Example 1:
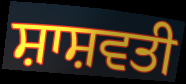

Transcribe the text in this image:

ਸ਼ਾਸ਼ਵਤੀ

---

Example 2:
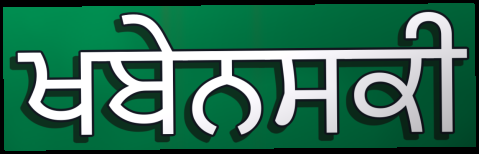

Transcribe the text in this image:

ਖਬੇਨਸਕੀ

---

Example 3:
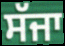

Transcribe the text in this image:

ਸੱਜਾ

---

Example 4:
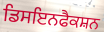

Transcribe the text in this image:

ਡਿਸਇਨਫੈਕਸ਼ਨ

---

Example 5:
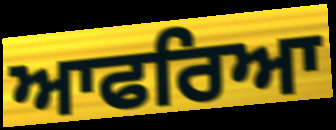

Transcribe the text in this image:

ਆਫਰਿਆ